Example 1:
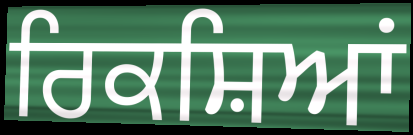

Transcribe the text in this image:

ਰਿਕਸ਼ਿਆਂ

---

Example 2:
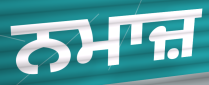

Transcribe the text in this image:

ਨਮਾਜ਼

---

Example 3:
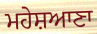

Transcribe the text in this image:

ਮਹੇਸ਼ਆਣਾ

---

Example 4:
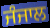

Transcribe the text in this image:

ਜੰਜਾਲ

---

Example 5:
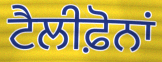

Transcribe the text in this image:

ਟੈਲੀਫ਼ੋਨਾਂ